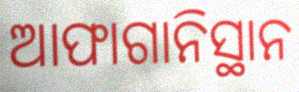
ଆଫାଗାନିସ୍ଥାନ